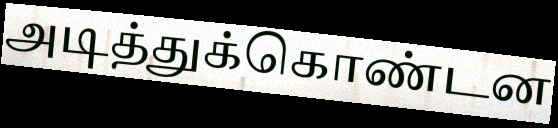
அடித்துக்கொண்டன